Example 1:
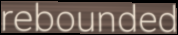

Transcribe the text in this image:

rebounded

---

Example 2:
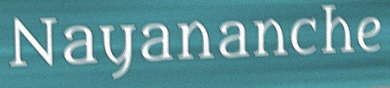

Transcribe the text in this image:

Nayananche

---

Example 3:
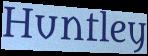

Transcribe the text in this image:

Huntley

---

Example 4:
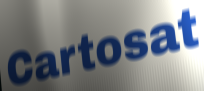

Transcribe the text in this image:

Cartosat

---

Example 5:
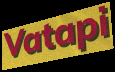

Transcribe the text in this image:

Vatapi